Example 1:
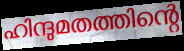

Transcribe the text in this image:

ഹിന്ദുമതത്തിന്റെ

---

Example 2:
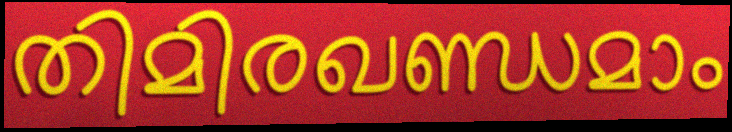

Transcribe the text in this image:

തിമിരഖണ്ഡമാം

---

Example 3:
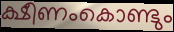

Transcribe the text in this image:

ക്ഷീണംകൊണ്ടും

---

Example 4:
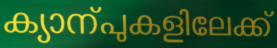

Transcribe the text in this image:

ക്യാന്പുകളിലേക്ക്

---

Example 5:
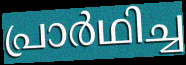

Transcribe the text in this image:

പ്രാർഥിച്ച